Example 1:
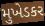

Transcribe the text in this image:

મુખેડકર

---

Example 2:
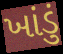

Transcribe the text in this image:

ખાંડું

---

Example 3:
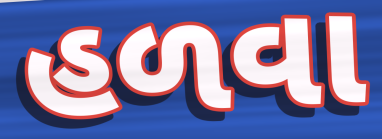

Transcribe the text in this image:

હળવા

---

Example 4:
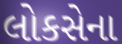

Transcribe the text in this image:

લોકસેના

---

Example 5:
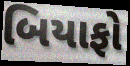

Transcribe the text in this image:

બિયાફો